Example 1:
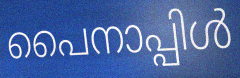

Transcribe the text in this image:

പൈനാപ്പിൾ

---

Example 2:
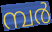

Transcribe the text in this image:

മ്പർ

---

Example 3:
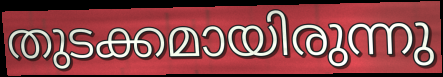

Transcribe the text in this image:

തുടക്കമായിരുന്നു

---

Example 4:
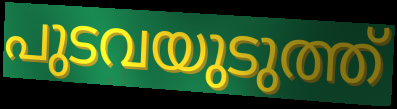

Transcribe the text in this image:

പുടവയുടുത്ത്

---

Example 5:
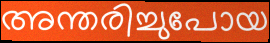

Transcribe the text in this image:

അന്തരിച്ചുപോയ